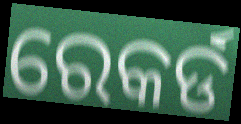
ରେକର୍ଡ